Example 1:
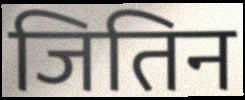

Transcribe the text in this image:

जितिन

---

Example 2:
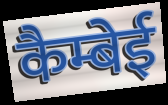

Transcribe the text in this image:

कैम्बेई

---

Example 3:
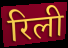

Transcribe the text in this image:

रिली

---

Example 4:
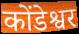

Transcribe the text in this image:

कोंडेश्वर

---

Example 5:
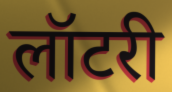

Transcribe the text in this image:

लॉटरी